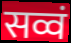
सव्वं